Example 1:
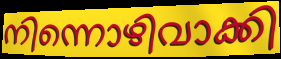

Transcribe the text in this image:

നിന്നൊഴിവാക്കി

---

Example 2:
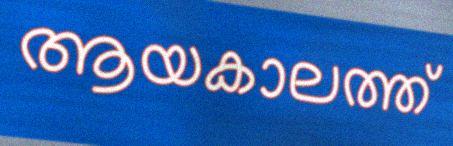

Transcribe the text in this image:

ആയകാലത്ത്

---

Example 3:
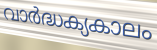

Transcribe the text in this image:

വാർദ്ധക്യകാലം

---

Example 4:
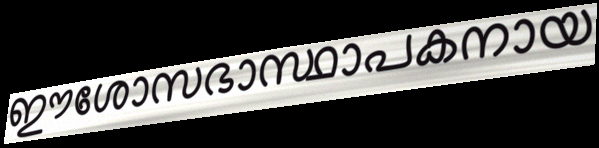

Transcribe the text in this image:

ഈശോസഭാസ്ഥാപകനായ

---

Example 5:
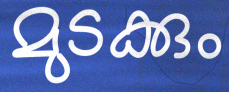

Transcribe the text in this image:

മുടക്കും